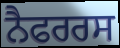
ਨੈਫਰਰਸ